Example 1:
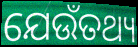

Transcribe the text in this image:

ଯେଉଁତଥ୍ୟ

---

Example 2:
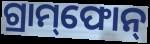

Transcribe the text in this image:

ଗ୍ରାମ୍‌ଫୋନ୍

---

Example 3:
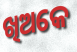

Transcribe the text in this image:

ଖିଅକେ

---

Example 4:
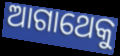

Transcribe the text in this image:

ଆଗାଥେକୁ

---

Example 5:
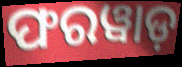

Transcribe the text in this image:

ଫରୱାଡ଼